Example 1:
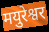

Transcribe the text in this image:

मयुरेश्वर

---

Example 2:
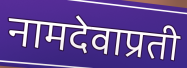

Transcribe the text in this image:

नामदेवाप्रती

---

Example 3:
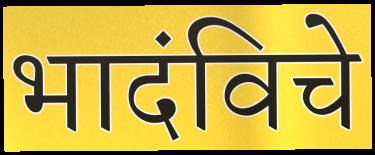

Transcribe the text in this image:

भादंविचे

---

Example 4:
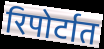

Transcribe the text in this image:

रिपोर्टात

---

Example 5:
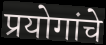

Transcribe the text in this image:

प्रयोगांचे